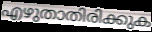
എഴുതാതിരിക്കുക